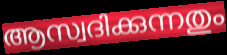
ആസ്വദിക്കുന്നതും